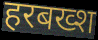
हरबख्श